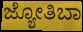
ಜ್ಯೋತಿಬಾ